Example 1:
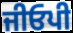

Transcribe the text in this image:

ਜੀਓਪੀ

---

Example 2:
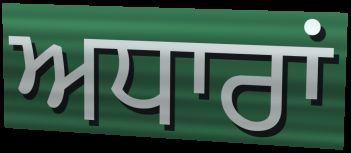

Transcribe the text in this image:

ਅਧਾਰਾਂ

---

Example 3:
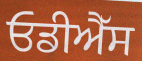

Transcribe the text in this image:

ਓਡੀਐੱਸ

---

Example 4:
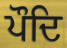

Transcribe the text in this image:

ਪੌਦਿ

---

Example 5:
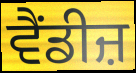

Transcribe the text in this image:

ਵੈਂਡੀਜ਼